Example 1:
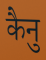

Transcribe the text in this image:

कैनु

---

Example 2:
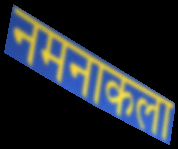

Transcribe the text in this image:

नमनाकला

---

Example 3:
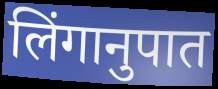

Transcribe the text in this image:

लिंगानुपात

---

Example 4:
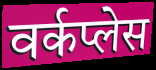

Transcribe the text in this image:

वर्कप्लेस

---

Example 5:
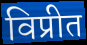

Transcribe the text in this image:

विप्रीत